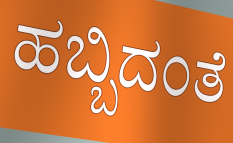
ಹಬ್ಬಿದಂತೆ